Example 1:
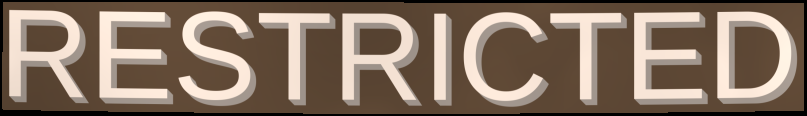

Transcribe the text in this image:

RESTRICTED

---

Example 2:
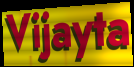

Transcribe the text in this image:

Vijayta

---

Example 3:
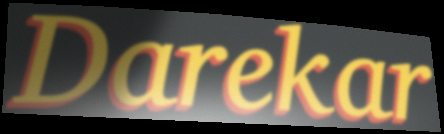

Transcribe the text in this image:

Darekar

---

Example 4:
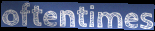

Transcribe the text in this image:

oftentimes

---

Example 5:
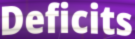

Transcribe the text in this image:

Deficits